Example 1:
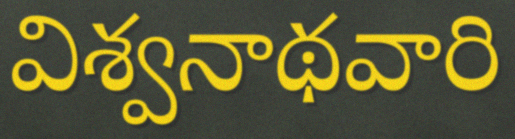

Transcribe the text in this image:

విశ్వనాథవారి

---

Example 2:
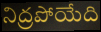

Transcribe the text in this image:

నిద్రపోయేది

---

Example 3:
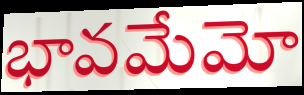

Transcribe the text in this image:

భావమేమో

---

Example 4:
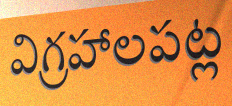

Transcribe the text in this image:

విగ్రహాలపట్ల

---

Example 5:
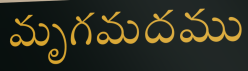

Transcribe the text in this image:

మృగమదము